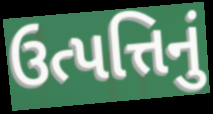
ઉત્પત્તિનું